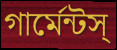
গার্মেন্টস্